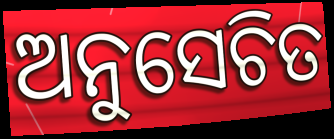
ଅନୁସେଚିତ